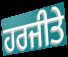
ਹਰਜੀਤੇ